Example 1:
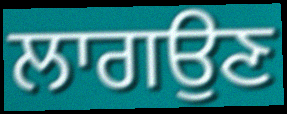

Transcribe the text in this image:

ਲਾਗਉਣ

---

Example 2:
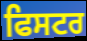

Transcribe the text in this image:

ਫਿਸਟਰ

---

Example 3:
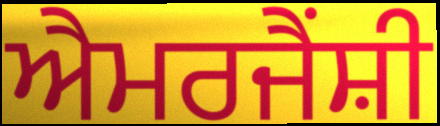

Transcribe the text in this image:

ਐਮਰਜੈਂਸ਼ੀ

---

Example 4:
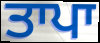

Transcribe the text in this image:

ਤਾਪਾ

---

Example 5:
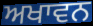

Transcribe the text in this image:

ਅਖਾਵਨ